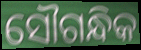
ସୌଗନ୍ଧିକ